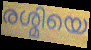
രശ്മിയെ